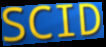
SCID